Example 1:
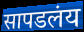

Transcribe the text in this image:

सापडलंय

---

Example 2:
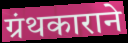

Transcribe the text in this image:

ग्रंथकाराने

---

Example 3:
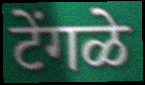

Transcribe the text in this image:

टेंगळे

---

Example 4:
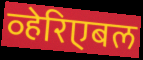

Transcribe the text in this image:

व्हेरिएबल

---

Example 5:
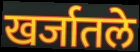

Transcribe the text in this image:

खर्जातले